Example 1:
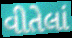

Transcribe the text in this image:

વીતેલાં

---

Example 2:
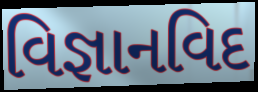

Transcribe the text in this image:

વિજ્ઞાનવિદ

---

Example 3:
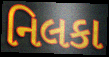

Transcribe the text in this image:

નિલકા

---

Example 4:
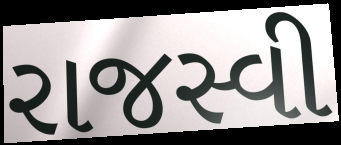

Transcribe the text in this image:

રાજસ્વી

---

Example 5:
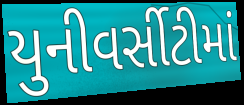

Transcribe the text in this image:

યુનીવર્સીટીમાં